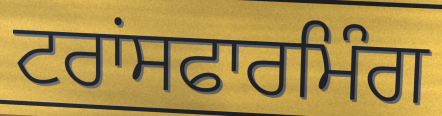
ਟਰਾਂਸਫਾਰਮਿੰਗ